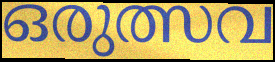
ഒരുത്സവ